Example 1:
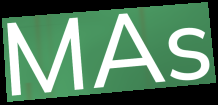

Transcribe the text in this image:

MAs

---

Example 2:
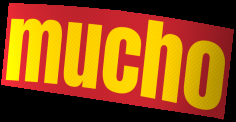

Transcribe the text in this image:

mucho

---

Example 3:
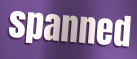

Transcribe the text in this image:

spanned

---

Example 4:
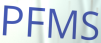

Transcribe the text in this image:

PFMS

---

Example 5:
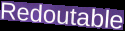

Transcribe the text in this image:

Redoutable